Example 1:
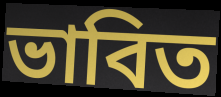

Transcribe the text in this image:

ভাবিত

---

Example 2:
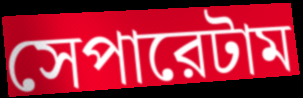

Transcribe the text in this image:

সেপারেটাম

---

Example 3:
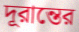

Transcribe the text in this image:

দূরান্তের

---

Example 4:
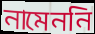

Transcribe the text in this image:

নামেননি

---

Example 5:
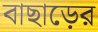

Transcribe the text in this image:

বাছাড়ের